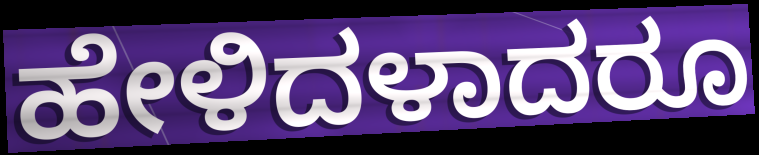
ಹೇಳಿದಳಾದರೂ